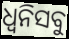
ଧ୍ୱନିସବୁ